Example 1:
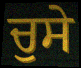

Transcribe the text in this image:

ਚੁਸੇ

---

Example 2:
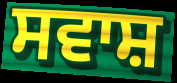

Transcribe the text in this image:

ਸਵਾਸ਼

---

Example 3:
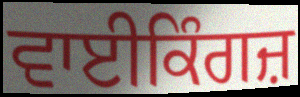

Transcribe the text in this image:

ਵਾਈਕਿੰਗਜ਼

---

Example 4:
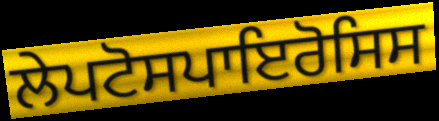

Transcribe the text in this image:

ਲੇਪਟੋਸਪਾਇਰੋਸਿਸ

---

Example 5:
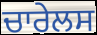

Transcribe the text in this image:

ਚਾਰੇਲਸ